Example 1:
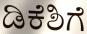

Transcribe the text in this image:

ಡಿಕೆಶಿಗೆ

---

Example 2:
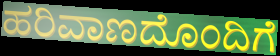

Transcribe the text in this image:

ಹರಿವಾಣದೊಂದಿಗೆ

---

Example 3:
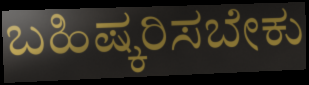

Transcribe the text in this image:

ಬಹಿಷ್ಕರಿಸಬೇಕು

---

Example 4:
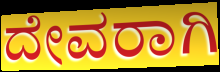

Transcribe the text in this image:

ದೇವರಾಗಿ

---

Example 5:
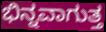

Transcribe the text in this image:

ಭಿನ್ನವಾಗುತ್ತ